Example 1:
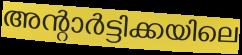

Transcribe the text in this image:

അന്റാർട്ടിക്കയിലെ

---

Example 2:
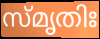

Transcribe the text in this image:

സ്മൃതിഃ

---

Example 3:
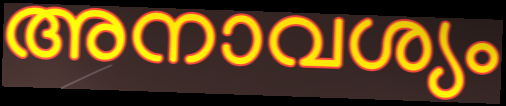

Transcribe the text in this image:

അനാവശ്യം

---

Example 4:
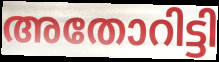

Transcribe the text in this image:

അതോറിട്ടി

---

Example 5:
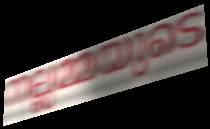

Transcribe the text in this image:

നല്ലമ്മയുടെ